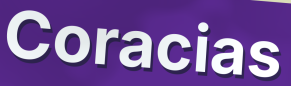
Coracias